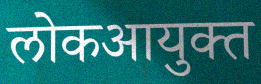
लोकआयुक्त